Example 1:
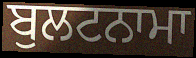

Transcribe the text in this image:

ਬੁਲਟਨਾਮਾ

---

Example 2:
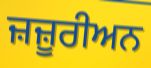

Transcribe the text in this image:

ਜ਼ਜ਼ੂਰੀਅਨ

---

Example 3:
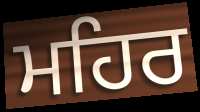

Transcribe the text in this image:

ਮਹਿਰ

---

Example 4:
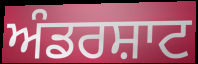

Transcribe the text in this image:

ਅੰਡਰਸ਼ਾਟ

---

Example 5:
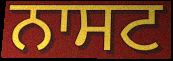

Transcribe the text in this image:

ਨਾਸਟ